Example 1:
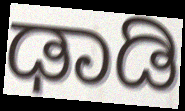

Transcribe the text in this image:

ಢಾಡಿ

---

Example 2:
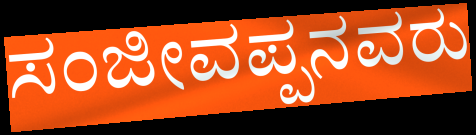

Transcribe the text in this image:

ಸಂಜೀವಪ್ಪನವರು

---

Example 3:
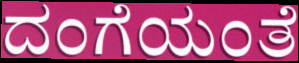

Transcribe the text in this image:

ದಂಗೆಯಂತೆ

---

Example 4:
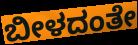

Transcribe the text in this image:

ಬೀಳದಂತೇ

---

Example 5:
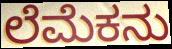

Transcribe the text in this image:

ಲೆಮೆಕನು